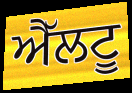
ਐੱਲਟੂ